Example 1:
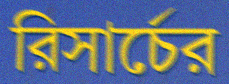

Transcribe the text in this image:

রিসার্চের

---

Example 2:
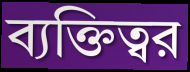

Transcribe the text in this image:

ব্যক্তিত্বর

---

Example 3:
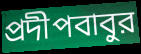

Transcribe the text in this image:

প্রদীপবাবুর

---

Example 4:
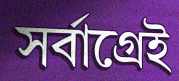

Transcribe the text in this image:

সর্বাগ্রেই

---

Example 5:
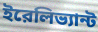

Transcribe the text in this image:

ইরেলিভ্যান্ট